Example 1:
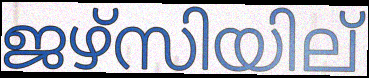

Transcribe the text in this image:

ജഴ്സിയില്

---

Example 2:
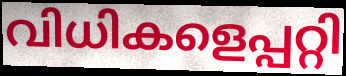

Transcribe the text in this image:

വിധികളെപ്പറ്റി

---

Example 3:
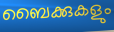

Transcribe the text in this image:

ബൈക്കുകളും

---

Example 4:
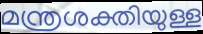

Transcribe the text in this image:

മന്ത്രശക്തിയുള്ള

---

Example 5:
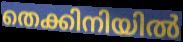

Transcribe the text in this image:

തെക്കിനിയിൽ